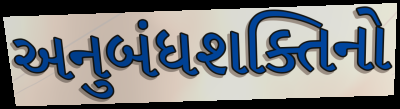
અનુબંધશક્તિનો